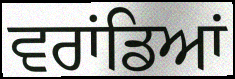
ਵਰਾਂਡਿਆਂ